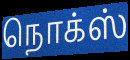
நொக்ஸ்